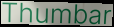
Thumbar